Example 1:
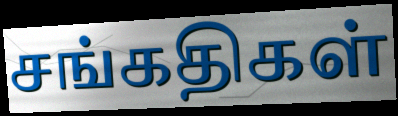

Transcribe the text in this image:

சங்கதிகள்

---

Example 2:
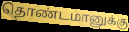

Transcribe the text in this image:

தொண்டமானுக்கு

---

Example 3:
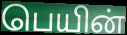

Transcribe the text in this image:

பெயின்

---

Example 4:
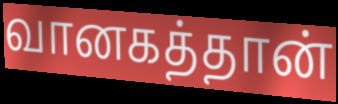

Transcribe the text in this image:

வானகத்தான்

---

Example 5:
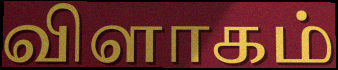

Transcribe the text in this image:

விளாகம்